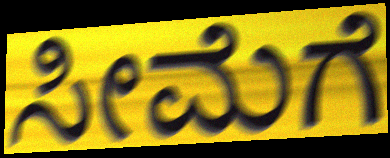
ಸೀಮೆಗೆ